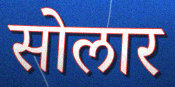
सोलार